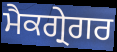
ਮੈਕਗ੍ਰੇਗਰ